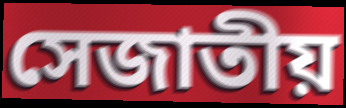
সেজাতীয়